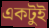
একটুই